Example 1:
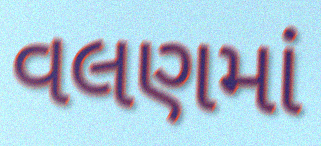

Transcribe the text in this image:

વલણમાં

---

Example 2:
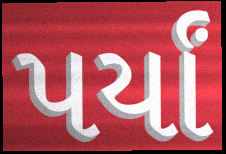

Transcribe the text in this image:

પર્યાં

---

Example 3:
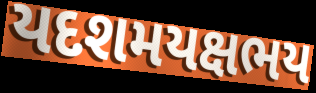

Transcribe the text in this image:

યદશમયક્ષભય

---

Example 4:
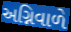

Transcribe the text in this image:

અગ્નિવાળે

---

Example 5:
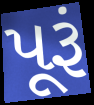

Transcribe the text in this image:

પૂરૂં